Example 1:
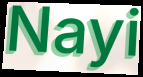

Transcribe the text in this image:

Nayi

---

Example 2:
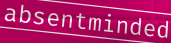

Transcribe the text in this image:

absentminded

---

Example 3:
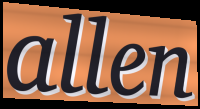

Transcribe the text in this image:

allen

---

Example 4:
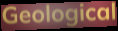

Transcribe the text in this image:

Geological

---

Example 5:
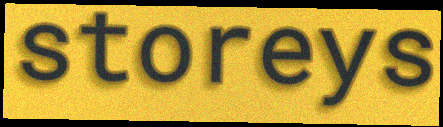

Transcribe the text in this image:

storeys